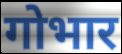
गोभार